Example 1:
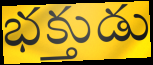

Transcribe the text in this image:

భక్తుడు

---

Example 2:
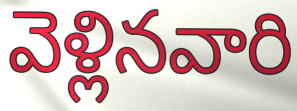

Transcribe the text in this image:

వెళ్లినవారి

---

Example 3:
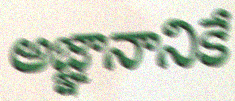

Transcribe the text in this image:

అజ్ఞానానికే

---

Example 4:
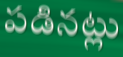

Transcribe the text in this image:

పడినట్లు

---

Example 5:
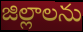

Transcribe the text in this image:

జిల్లాలను